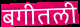
बगीतली